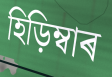
হিড়িম্বাৰ